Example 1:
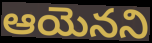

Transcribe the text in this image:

ఆయెనని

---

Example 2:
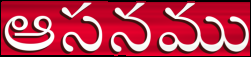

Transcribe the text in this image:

ఆసనము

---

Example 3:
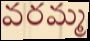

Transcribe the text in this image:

వరమ్మ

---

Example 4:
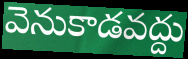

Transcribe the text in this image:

వెనుకాడవద్దు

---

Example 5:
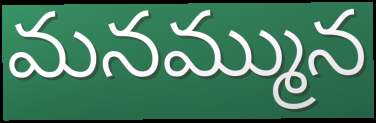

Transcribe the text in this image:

మనమ్మున